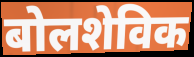
बोलशेविक